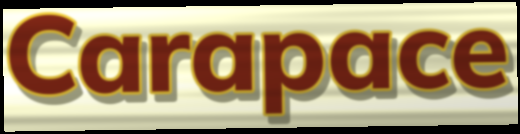
Carapace